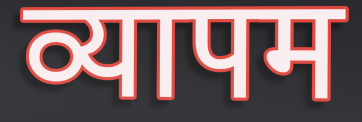
व्यापम